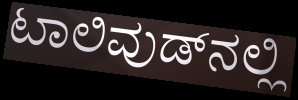
ಟಾಲಿವುಡ್‌ನಲ್ಲಿ